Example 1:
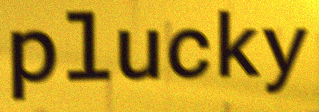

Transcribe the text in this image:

plucky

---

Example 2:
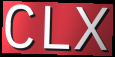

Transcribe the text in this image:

CLX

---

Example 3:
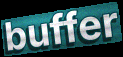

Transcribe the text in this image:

buffer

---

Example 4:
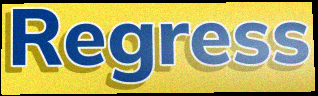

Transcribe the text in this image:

Regress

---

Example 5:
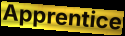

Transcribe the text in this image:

Apprentice